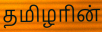
தமிழரின்